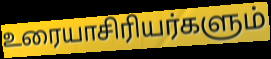
உரையாசிரியர்களும்